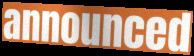
announced